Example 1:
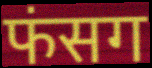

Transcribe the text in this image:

फंसग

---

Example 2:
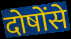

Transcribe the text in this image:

दोषोंसे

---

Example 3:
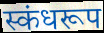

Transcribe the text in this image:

स्कंधरूप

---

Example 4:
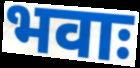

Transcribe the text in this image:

भवाः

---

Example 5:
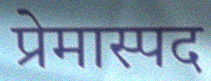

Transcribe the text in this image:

प्रेमास्पद